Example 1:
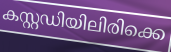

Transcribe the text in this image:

കസ്റ്റഡിയിലിരിക്കെ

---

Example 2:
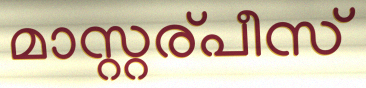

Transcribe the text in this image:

മാസ്റ്റര്പീസ്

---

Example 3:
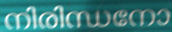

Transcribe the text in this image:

നിരിന്ധനോ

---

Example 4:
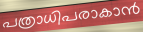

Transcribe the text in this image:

പത്രാധിപരാകാൻ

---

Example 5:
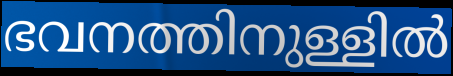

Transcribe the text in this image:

ഭവനത്തിനുള്ളിൽ